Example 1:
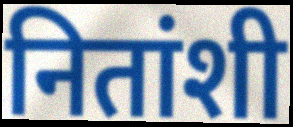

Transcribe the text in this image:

नितांशी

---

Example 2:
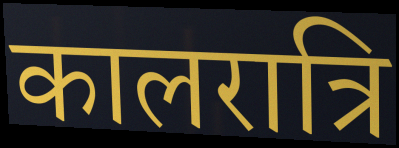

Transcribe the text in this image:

कालरात्रि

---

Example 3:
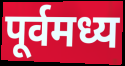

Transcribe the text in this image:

पूर्वमध्य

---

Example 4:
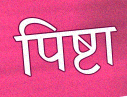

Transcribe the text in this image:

पिष्टा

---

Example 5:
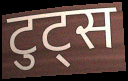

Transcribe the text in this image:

टुट्स